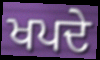
ਖਪਦੇ